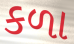
કળા